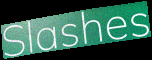
Slashes